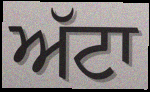
ਅੱਟਾ